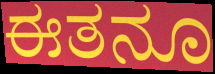
ಈತನೂ